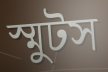
স্মুটস